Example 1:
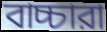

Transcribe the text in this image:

বাচ্চারা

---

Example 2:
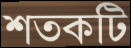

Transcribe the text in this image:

শতকটি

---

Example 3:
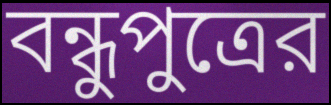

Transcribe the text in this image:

বন্ধুপুত্রের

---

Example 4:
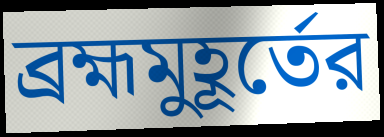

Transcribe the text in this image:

ব্রহ্মমুহূর্তের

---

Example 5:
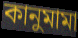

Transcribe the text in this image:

কানুমামা